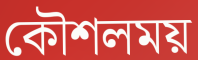
কৌশলময়